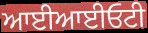
ਆਈਆਈਓਟੀ